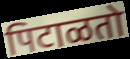
पिटाळतो